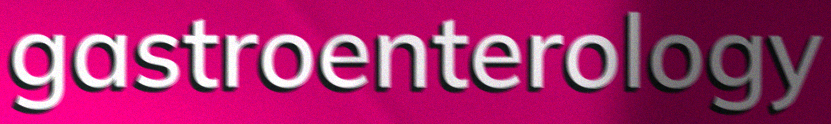
gastroenterology